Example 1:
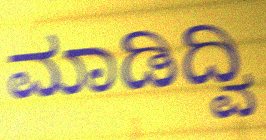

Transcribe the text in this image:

ಮಾಡಿದ್ವಿ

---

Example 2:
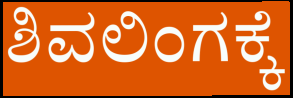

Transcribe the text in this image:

ಶಿವಲಿಂಗಕ್ಕೆ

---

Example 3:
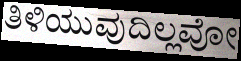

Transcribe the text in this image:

ತಿಳಿಯುವುದಿಲ್ಲವೋ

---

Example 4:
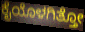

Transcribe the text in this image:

ಕೈಯೊಳಗಿತ್ತೋ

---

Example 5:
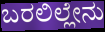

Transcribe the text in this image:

ಬರಲಿಲ್ಲೇನು